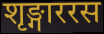
शृङ्गाररस